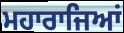
ਮਹਾਰਾਜਿਆਂ